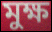
মুক্ষ